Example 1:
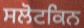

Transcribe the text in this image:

ਸਲੋਟਕਿਨ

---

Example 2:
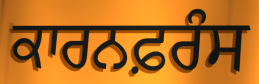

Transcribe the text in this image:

ਕਾਰਨਫ਼ਰੰਸ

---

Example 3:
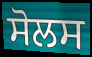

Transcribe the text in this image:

ਸੋਲਸ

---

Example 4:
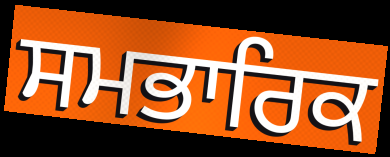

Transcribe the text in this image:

ਸਮਭਾਰਿਕ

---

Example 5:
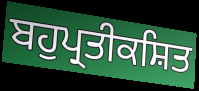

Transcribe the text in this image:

ਬਹੁਪ੍ਰਤੀਕਸ਼ਿਤ